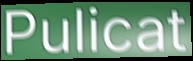
Pulicat